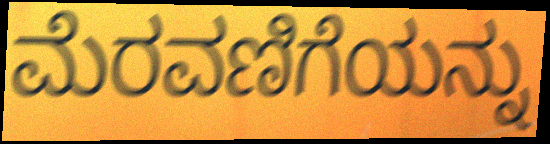
ಮೆರವಣಿಗೆಯನ್ನು